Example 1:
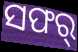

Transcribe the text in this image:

ସଫର୍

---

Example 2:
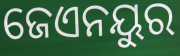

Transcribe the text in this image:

ଜେଏନୟୁର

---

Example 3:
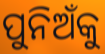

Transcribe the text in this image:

ପୁନିଅଁକୁ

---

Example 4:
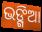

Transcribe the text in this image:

ଭଙ୍ଗିଆ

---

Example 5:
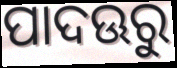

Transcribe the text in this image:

ପାଦଊରୁ